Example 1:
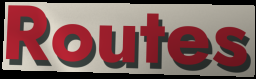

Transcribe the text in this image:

Routes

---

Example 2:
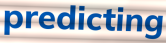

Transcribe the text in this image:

predicting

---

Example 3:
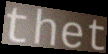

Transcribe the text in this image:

thet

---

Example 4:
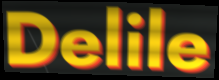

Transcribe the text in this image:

Delile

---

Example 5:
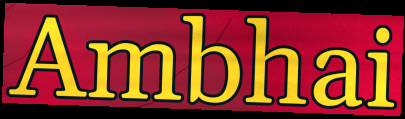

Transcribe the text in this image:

Ambhai